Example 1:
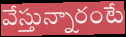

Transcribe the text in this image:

వేస్తున్నారంటే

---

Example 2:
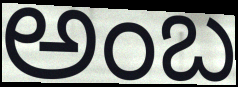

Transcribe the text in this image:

అంబ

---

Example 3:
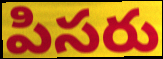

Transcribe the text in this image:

పిసరు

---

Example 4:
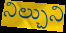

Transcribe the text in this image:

నిల్చుని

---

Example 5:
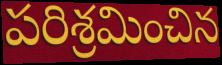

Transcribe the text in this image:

పరిశ్రమించిన